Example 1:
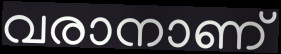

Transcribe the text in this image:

വരാനാണ്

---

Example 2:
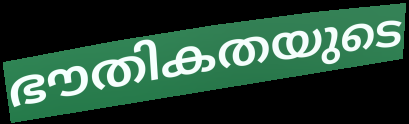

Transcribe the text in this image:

ഭൗതികതയുടെ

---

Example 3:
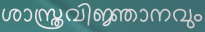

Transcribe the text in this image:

ശാസ്ത്രവിജ്ഞാനവും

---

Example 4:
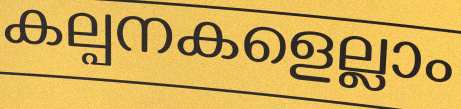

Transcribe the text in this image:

കല്പനകളെല്ലാം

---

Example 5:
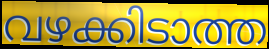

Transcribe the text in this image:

വഴക്കിടാത്ത